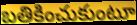
బతికించుకుంటూ